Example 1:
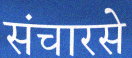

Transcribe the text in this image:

संचारसे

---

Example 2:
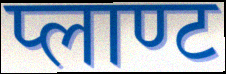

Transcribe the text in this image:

प्लाण्ट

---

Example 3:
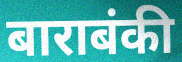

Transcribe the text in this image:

बाराबंकी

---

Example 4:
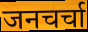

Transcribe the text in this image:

जनचर्चा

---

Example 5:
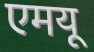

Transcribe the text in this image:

एमयू